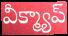
వీక్మ్యాప్